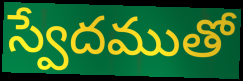
స్వేదముతో